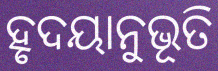
ହୃଦୟାନୁଭୂତି